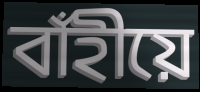
বাঁহীয়ে